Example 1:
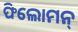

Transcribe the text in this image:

ଫିଲୋମନ୍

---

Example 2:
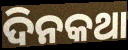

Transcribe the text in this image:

ଦିନକଥା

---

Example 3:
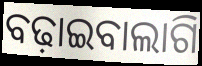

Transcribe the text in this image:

ବଢ଼ାଇବାଲାଗି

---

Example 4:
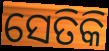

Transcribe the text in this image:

ସେତିକି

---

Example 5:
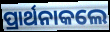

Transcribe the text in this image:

ପ୍ରାର୍ଥନାକଲେ